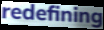
redefining